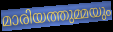
മാരിയത്തുമ്മയും